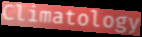
Climatology